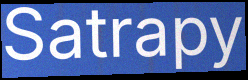
Satrapy